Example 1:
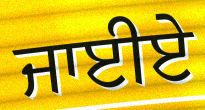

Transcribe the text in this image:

ਜਾਈਏ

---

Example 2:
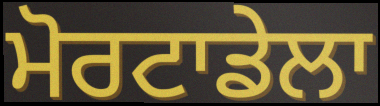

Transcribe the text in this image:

ਮੋਰਟਾਡੇਲਾ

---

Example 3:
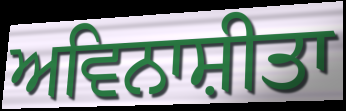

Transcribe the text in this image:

ਅਵਿਨਾਸ਼ੀਤਾ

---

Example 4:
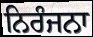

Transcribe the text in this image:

ਨਿਰੰਜਨਾ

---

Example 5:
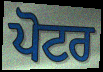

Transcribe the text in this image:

ਪੋਟਰ